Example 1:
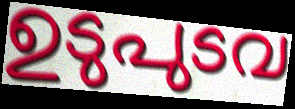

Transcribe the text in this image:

ഉടുപുടവ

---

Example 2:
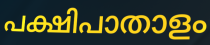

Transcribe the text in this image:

പക്ഷിപാതാളം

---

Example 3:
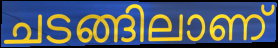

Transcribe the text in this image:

ചടങ്ങിലാണ്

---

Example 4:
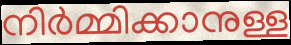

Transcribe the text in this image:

നിർമ്മിക്കാനുള്ള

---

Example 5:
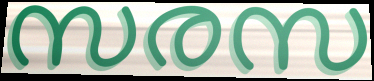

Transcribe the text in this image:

സരസ